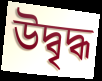
উদ্বৃদ্ধ